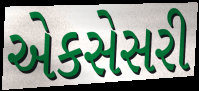
એકસેસરી